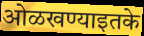
ओळखण्याइतके